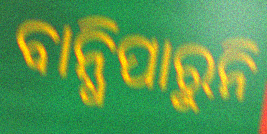
ବାନ୍ଧିପାରୁନି